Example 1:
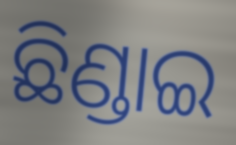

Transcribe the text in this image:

ଛିଣ୍ଡାଇ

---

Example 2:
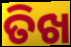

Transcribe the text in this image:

ତିଖ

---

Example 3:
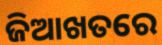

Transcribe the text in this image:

ଜିଆଖତରେ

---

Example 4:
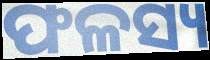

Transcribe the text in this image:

ଫଳସ୍ୟ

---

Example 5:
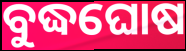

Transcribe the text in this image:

ବୁଦ୍ଧଘୋଷ